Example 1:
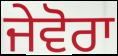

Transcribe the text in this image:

ਜੇਵੋਰਾ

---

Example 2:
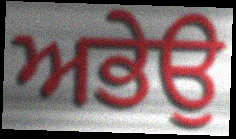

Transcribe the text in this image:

ਅਭੇਉ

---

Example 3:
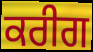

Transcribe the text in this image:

ਕਰੀਗ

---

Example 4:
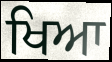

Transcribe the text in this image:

ਖਿਆ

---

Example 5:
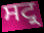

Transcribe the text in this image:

ਸਟ੍ਰ